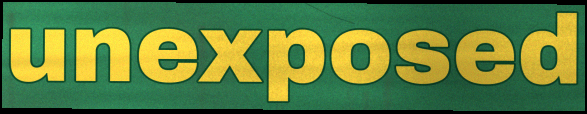
unexposed